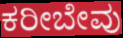
ಕರೀಬೇವು